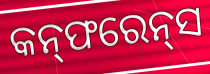
କନ୍‌ଫରେନ୍‌ସ